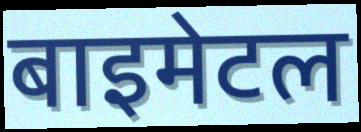
बाइमेटल